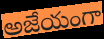
అజేయంగా